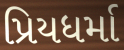
પ્રિયધર્મા